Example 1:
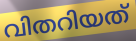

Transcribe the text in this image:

വിതറിയത്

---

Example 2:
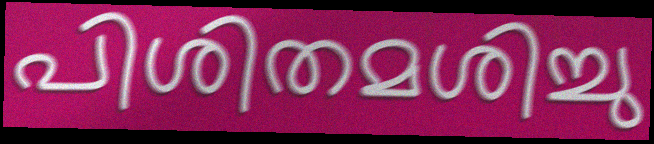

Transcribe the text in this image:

പിശിതമശിച്ചു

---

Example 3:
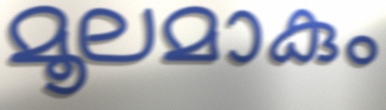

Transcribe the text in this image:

മൂലമാകും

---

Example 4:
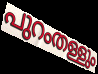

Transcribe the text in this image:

പുറംതള്ളും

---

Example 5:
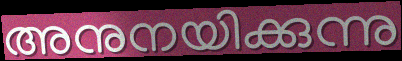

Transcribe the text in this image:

അനുനയിക്കുന്നു